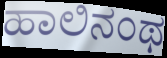
ಹಾಲಿನಂಥ